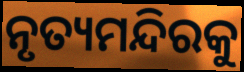
ନୃତ୍ୟମନ୍ଦିରକୁ